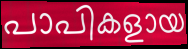
പാപികളായ